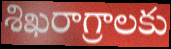
శిఖరాగ్రాలకు